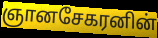
ஞானசேகரனின்